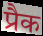
प्रैक